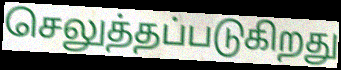
செலுத்தப்படுகிறது